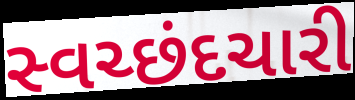
સ્વચ્છંદચારી